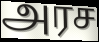
அரச